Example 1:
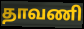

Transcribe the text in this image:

தாவணி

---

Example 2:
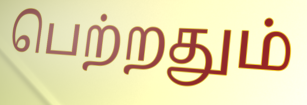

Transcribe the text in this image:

பெற்றதும்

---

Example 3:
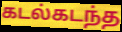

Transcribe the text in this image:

கடல்கடந்த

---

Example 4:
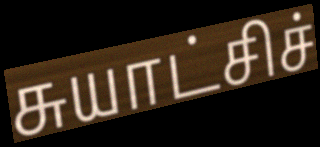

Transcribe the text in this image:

சுயாட்சிச்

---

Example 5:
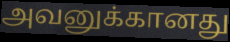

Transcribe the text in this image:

அவனுக்கானது